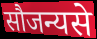
सौजन्यसे